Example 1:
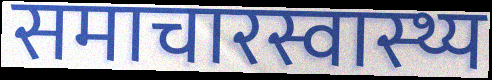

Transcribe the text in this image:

समाचारस्वास्थ्य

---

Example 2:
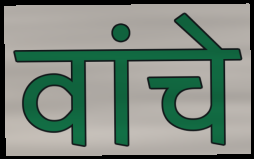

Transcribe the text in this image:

वांचे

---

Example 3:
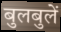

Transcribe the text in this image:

बुलबुलें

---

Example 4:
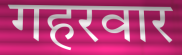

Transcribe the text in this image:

गहरवार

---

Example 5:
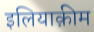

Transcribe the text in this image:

इलियाक़ीम